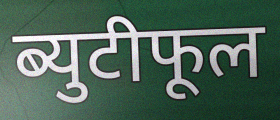
ब्युटीफूल